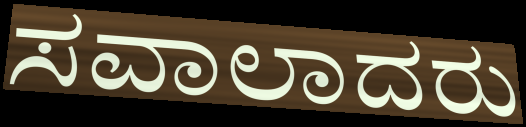
ಸವಾಲಾದರು